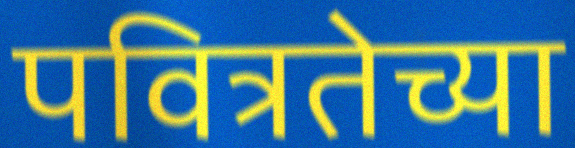
पवित्रतेच्या